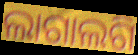
ଲାଗାଲଗି